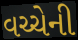
વચ્ચેની